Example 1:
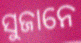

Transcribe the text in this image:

ସୁଜାନେ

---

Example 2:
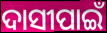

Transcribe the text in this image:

ଦାସୀପାଇଁ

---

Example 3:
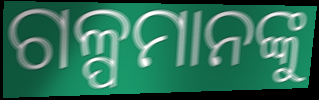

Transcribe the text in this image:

ଗଳ୍ପମାନଙ୍କୁ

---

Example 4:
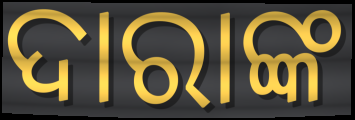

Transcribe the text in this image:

ଦାରାଙ୍କ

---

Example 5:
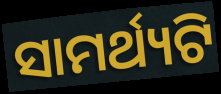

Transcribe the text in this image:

ସାମର୍ଥ୍ୟଟି